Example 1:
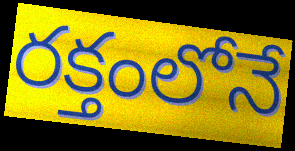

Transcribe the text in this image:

రక్తంలోనే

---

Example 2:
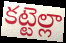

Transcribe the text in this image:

కట్టెల్లా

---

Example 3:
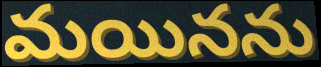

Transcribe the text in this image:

మయినను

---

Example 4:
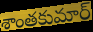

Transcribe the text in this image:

శాంతకుమార్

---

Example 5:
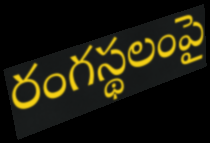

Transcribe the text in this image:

రంగస్థలంపై